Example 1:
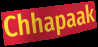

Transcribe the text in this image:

Chhapaak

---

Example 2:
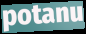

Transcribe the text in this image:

potanu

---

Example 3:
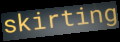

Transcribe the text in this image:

skirting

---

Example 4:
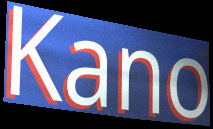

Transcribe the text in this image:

Kano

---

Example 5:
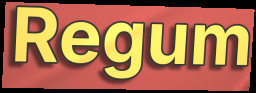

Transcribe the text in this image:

Regum